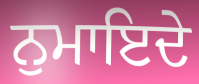
ਨੁਮਾਇਦੇ